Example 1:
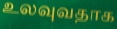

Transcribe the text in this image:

உலவுவதாக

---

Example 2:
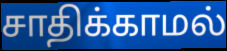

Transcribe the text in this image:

சாதிக்காமல்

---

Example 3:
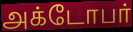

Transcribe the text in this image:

அக்டோபர்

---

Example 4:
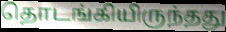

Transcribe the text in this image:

தொடங்கியிருந்தது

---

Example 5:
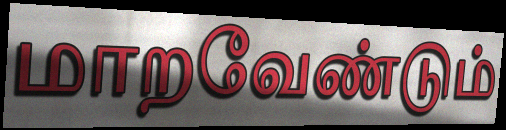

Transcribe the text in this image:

மாறவேண்டும்